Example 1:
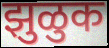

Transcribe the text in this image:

झुळुक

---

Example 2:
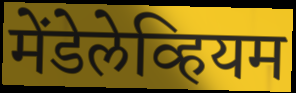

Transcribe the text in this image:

मेंडेलेव्हियम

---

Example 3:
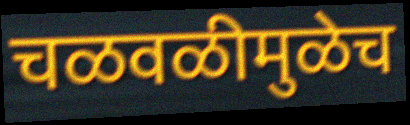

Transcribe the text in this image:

चळवळीमुळेच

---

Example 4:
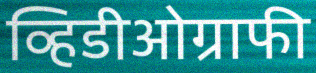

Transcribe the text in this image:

व्हिडीओग्राफी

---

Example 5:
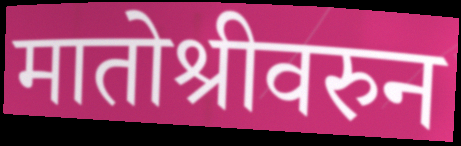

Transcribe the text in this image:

मातोश्रीवरुन